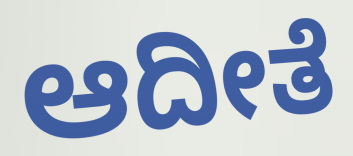
ಆದೀತೆ